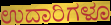
ಉದಾರಿಗಳೂ